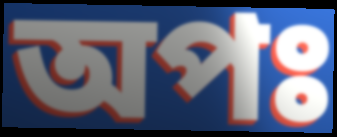
অপঃ